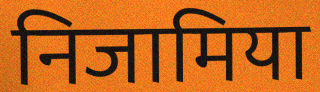
निजामिया